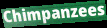
Chimpanzees